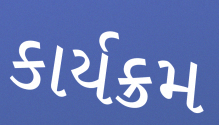
કાર્યક્રમ